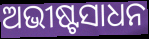
ଅଭୀଷ୍ଟସାଧନ